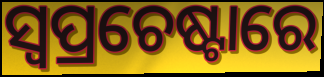
ସ୍ଵପ୍ରଚେଷ୍ଟାରେ